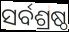
ସର୍ବଶ୍ରଷ୍ଠ